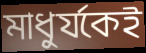
মাধুর্যকেই